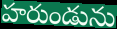
హరుండును